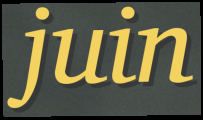
juin